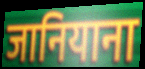
जानियाना